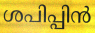
ശപിപ്പിൻ